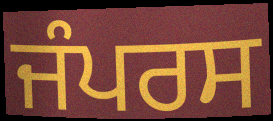
ਜੰਪਰਸ